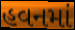
હવનમાં